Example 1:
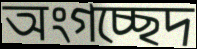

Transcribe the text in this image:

অংগচ্ছেদ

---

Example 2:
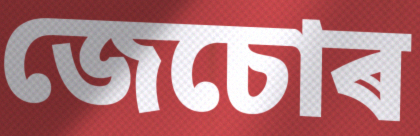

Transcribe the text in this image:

জেচোৰ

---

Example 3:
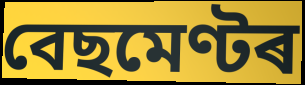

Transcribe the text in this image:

বেছমেণ্টৰ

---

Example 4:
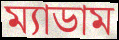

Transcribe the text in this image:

ম্যাডাম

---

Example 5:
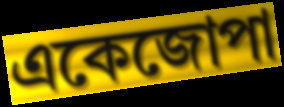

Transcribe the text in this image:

একেজোপা